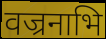
वज्रनाभि